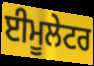
ਈਮੂਲੇਟਰ